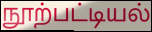
நூற்பட்டியல்